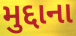
મુદ્દાના